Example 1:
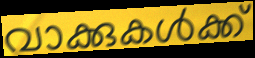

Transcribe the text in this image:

വാക്കുകൾക്ക്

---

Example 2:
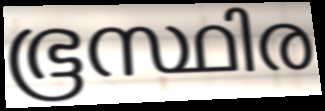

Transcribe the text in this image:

ഭൂസ്ഥിര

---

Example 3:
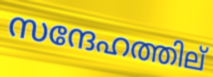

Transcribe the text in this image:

സന്ദേഹത്തില്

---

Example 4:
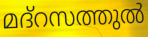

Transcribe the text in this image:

മദ്റസത്തുൽ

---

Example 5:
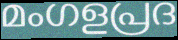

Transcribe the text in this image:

മംഗളപ്രദ